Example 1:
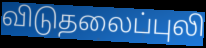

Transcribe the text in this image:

விடுதலைப்புலி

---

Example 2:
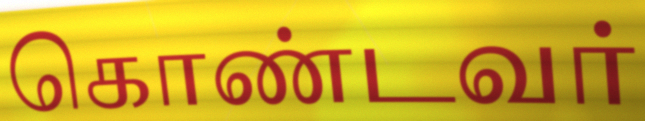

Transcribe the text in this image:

கொண்டவர்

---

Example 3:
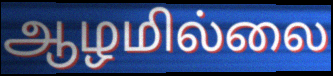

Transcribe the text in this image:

ஆழமில்லை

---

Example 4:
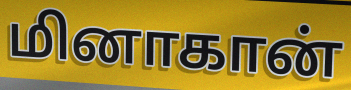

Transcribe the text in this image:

மினாகான்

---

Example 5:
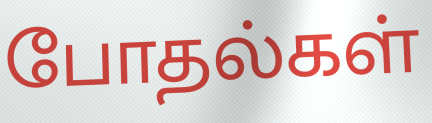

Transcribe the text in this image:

போதல்கள்